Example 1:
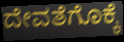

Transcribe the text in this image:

ದೇವತೆಗೊಕ್ಕೆ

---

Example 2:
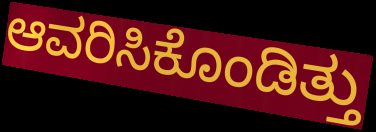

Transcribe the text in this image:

ಆವರಿಸಿಕೊಂಡಿತ್ತು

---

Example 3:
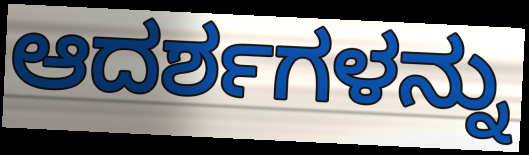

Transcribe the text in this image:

ಆದರ್ಶಗಳನ್ನು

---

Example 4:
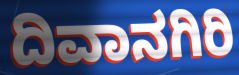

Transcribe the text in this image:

ದಿವಾನಗಿರಿ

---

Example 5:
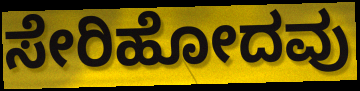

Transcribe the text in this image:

ಸೇರಿಹೋದವು